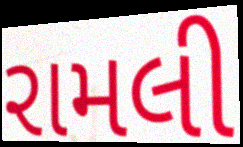
રામલી